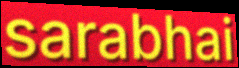
sarabhai